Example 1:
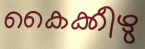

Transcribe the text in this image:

കൈക്കീഴു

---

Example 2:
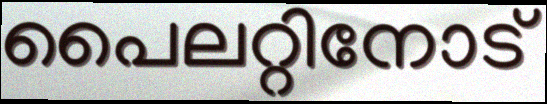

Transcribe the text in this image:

പൈലറ്റിനോട്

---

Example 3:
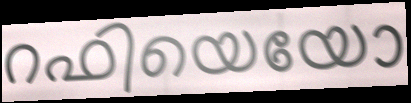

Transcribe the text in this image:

റഫിയെയോ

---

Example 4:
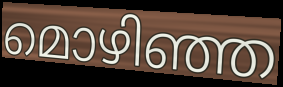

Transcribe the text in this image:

മൊഴിഞ്ഞ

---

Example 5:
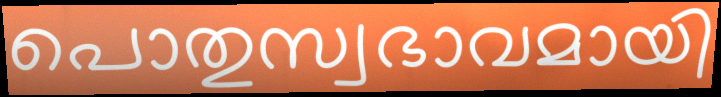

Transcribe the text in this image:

പൊതുസ്വഭാവമായി